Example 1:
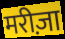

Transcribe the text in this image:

मरीज़ा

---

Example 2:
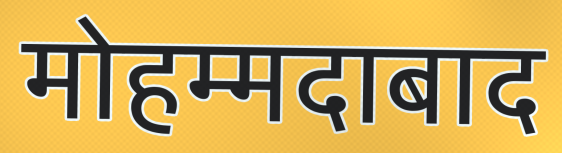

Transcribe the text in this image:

मोहम्मदाबाद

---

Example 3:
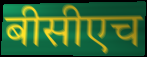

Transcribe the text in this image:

बीसीएच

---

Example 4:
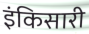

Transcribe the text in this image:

इंकिसारी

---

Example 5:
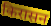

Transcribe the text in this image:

किरासन